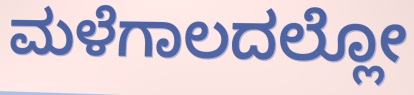
ಮಳೆಗಾಲದಲ್ಲೋ